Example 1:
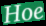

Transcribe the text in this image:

Hoe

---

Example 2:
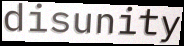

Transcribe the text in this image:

disunity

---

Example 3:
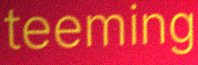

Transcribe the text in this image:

teeming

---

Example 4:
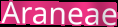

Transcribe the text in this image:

Araneae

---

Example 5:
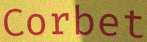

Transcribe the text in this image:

Corbet